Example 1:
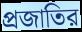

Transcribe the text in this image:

প্রজাতির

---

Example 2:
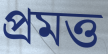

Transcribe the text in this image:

প্রমত্ত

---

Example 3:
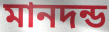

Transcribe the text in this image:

মানদন্ড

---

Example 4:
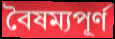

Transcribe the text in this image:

বৈষম্যপূর্ণ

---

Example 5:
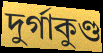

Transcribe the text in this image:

দুর্গাকুণ্ড